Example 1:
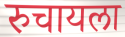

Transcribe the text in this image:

रुचायला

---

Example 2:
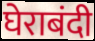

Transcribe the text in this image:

घेराबंदी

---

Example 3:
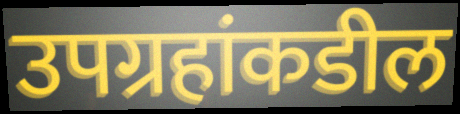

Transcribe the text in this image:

उपग्रहांकडील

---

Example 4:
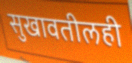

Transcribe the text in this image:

सुखावतीलही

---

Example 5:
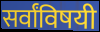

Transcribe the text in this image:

सर्वांविषयी